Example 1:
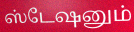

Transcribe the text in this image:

ஸ்டேஷனும்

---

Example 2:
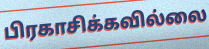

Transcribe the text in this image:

பிரகாசிக்கவில்லை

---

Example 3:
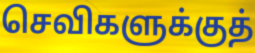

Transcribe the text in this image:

செவிகளுக்குத்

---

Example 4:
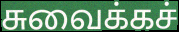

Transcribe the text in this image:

சுவைக்கச்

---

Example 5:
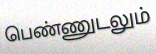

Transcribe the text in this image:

பெண்ணுடலும்